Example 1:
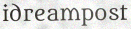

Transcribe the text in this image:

idreampost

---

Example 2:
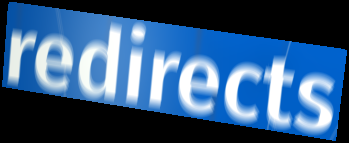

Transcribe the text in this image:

redirects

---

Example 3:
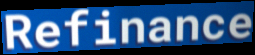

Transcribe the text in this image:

Refinance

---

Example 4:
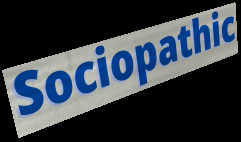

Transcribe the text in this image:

Sociopathic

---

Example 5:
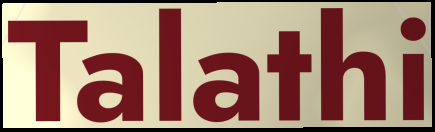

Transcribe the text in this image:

Talathi